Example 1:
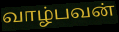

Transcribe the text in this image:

வாழ்பவன்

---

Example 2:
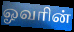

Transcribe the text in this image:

ஓவரின்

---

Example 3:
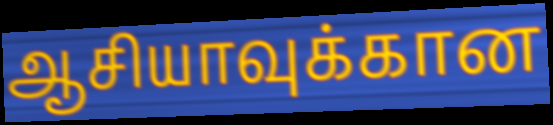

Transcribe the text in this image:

ஆசியாவுக்கான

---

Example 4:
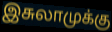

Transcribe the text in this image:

இசுலாமுக்கு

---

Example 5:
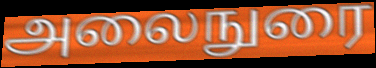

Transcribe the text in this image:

அலைநுரை